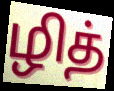
ழித்